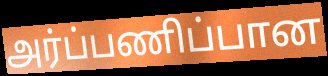
அர்ப்பணிப்பான